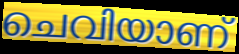
ചെവിയാണ്